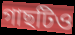
গাছটিও